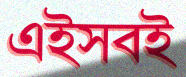
এইসবই